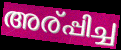
അര്പ്പിച്ച